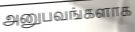
அனுபவங்களாக